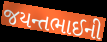
જયન્તભાઈની